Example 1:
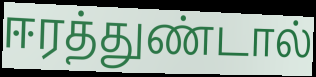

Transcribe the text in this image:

ஈரத்துண்டால்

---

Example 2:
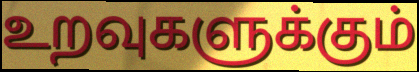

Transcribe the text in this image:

உறவுகளுக்கும்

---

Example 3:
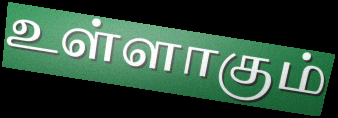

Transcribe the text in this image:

உள்ளாகும்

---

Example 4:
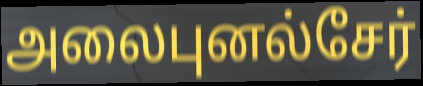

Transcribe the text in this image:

அலைபுனல்சேர்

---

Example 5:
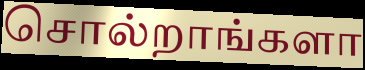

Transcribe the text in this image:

சொல்றாங்களா